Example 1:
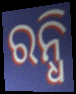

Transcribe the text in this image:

ରନ୍ଧି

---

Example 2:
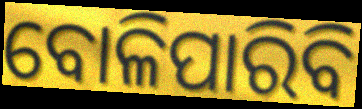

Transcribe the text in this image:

ବୋଳିପାରିବି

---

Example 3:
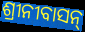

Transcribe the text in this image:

ଶ୍ରୀନୀବାସନ୍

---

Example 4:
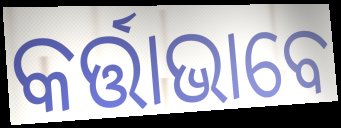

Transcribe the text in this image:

କର୍ତ୍ତାଭାବେ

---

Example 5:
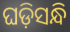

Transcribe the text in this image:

ଘଡ଼ିସନ୍ଧି